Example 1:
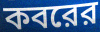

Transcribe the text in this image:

কবরের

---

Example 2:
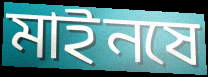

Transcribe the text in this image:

মাইনষে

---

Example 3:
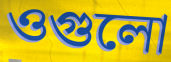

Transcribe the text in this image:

ওগুলো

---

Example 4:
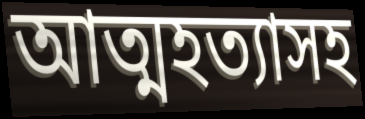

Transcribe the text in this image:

আত্মহত্যাসহ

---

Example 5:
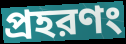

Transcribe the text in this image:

প্রহরণং